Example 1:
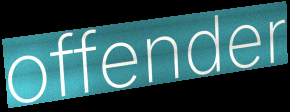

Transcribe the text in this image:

offender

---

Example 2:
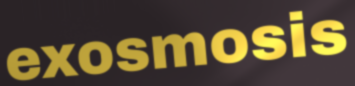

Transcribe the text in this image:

exosmosis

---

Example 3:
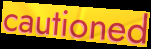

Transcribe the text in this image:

cautioned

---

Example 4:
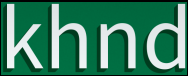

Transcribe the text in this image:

khnd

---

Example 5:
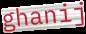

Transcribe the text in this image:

ghanij